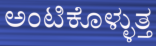
ಅಂಟಿಕೊಳ್ಳುತ್ತ